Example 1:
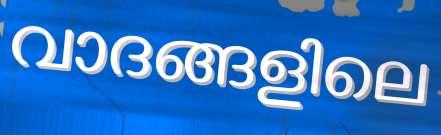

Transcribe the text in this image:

വാദങ്ങളിലെ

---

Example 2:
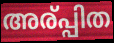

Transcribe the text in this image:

അര്പ്പിത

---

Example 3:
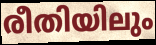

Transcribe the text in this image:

രീതിയിലും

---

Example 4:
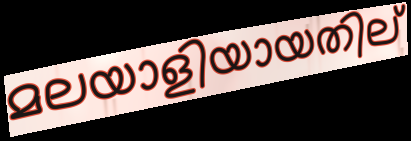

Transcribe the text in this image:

മലയാളിയായതില്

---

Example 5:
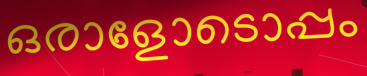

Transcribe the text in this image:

ഒരാളോടൊപ്പം